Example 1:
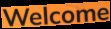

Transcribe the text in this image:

Welcome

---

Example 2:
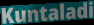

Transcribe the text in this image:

Kuntaladi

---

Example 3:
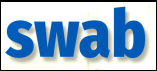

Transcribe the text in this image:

swab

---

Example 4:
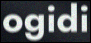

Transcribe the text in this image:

ogidi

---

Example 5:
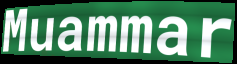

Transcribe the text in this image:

Muammar